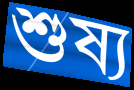
শুষ্য